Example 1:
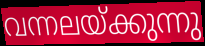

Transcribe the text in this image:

വന്നലയ്ക്കുന്നു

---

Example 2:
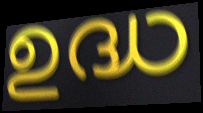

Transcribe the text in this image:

ഉദ്ധ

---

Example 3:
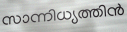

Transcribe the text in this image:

സാന്നിധ്യത്തിൻ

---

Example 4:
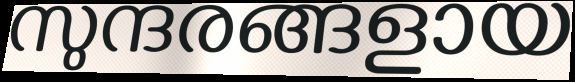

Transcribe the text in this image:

സുന്ദരങ്ങളായ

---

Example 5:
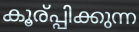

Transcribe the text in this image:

കൂര്പ്പിക്കുന്ന